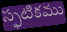
స్ఫటికము